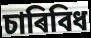
চাৰিবিধ